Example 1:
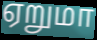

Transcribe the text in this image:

ஏறுமா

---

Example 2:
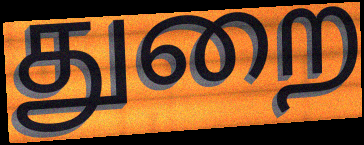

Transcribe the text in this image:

துறை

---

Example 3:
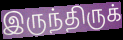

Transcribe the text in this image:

இருந்திருக்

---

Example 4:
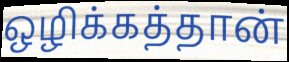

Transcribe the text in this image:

ஒழிக்கத்தான்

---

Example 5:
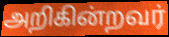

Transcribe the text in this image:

அறிகின்றவர்